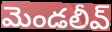
మెండలీవ్